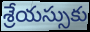
శ్రేయస్సుకు